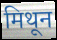
मिथून